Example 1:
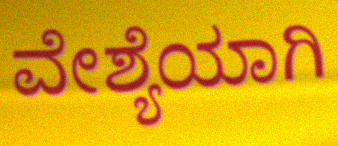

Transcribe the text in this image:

ವೇಶ್ಯೆಯಾಗಿ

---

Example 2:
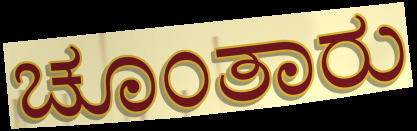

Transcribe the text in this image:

ಚೂಂತಾರು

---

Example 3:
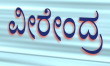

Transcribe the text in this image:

ವೀರೇಂದ್ರ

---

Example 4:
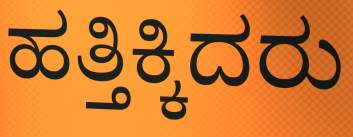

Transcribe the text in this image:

ಹತ್ತಿಕ್ಕಿದರು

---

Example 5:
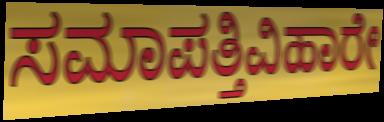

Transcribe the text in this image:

ಸಮಾಪತ್ತಿವಿಹಾರೇ